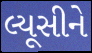
લ્યૂસીને